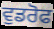
ਵੁਡਰੋਫ